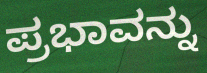
ಪ್ರಭಾವನ್ನು